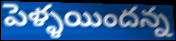
పెళ్ళయిందన్న